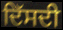
ਦਿੱਸਦੀ